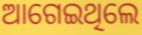
ଆଗେଇଥିଲେ